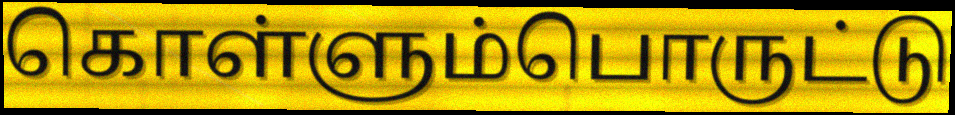
கொள்ளும்பொருட்டு